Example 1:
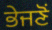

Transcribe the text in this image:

ਭੇਜਣੋਂ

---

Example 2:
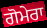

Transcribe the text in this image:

ਗੋਮੇਰਾ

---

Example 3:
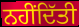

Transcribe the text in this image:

ਨਹੀਂਦਿੱਤੀ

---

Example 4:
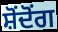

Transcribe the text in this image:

ਸ਼ੋਂਦੋਂਗ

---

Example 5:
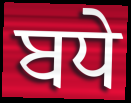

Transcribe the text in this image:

ਬਧੇ